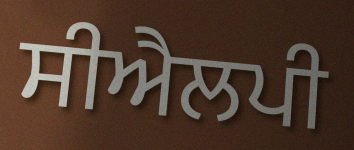
ਸੀਐਲਪੀ